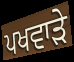
ਪਖਵਾੜੇ